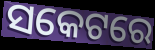
ସକେଟରେ